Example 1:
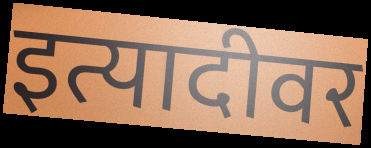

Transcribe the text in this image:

इत्यादीवर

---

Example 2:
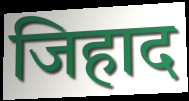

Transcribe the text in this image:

जिहाद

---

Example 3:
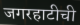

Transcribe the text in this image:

जगरहाटीची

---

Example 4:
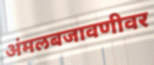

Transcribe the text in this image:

अंमलबजावणीवर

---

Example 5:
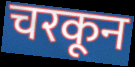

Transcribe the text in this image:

चरकून